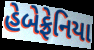
હેબેફ્રેનિયા